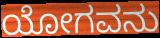
ಯೋಗವನು